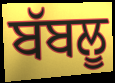
ਬੱਬਲੂ